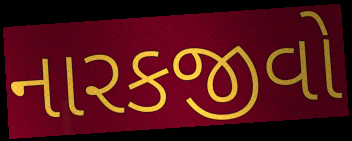
નારકજીવો